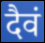
दैवं